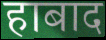
हाबाद